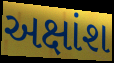
અક્ષાંશ